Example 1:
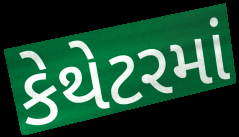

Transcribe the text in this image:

કેથેટરમાં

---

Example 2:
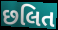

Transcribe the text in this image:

છલિત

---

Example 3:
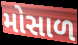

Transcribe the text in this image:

મોસાળ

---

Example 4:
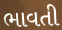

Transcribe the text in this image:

ભાવતી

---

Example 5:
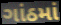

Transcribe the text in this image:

ગાંઠમાં